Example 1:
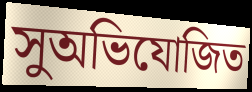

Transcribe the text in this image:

সুঅভিযোজিত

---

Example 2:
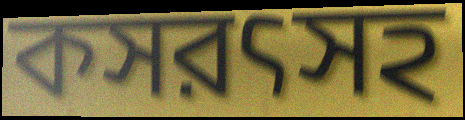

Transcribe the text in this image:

কসরৎসহ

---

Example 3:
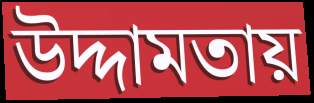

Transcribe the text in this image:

উদ্দামতায়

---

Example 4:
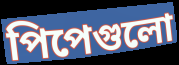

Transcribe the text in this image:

পিপেগুলো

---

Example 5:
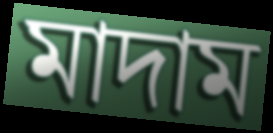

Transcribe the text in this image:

মাদাম